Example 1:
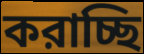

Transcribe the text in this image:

করাচ্ছি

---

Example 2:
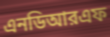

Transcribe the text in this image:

এনডিআরএফ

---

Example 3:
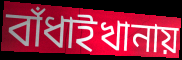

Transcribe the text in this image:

বাঁধাইখানায়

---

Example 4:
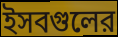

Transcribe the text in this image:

ইসবগুলের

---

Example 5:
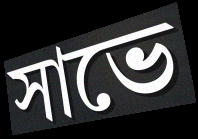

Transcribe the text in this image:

সাভে